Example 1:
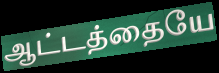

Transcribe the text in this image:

ஆட்டத்தையே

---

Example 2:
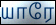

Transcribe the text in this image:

யாரே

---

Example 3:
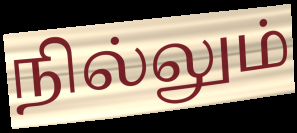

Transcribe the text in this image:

நில்லும்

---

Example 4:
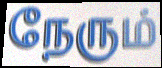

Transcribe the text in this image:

நேரும்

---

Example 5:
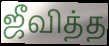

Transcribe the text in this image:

ஜீவித்த